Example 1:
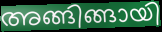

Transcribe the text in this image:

അങ്ങിങ്ങായി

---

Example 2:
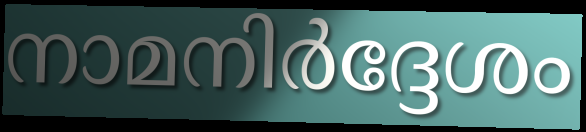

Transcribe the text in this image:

നാമനിർദ്ദേശം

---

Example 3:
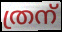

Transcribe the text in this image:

ത്രന്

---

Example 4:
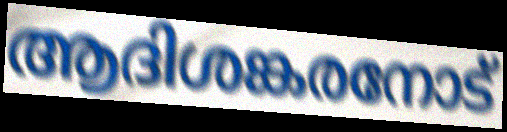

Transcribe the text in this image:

ആദിശങ്കരനോട്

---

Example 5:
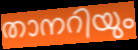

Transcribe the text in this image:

താനറിയും